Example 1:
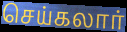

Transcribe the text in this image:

செய்கலார்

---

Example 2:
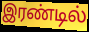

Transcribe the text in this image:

இரண்டில்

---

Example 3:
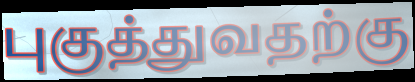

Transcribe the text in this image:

புகுத்துவதற்கு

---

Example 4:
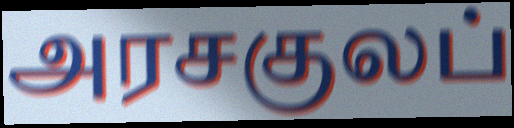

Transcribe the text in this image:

அரசகுலப்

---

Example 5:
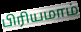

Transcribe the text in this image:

பிரியமாம்